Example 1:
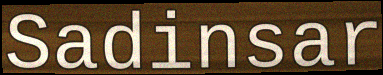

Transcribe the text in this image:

Sadinsar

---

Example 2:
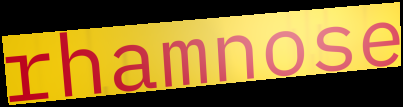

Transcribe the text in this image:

rhamnose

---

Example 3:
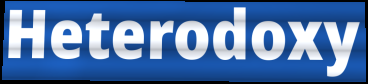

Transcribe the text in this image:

Heterodoxy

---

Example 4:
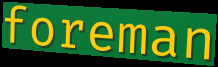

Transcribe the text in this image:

foreman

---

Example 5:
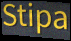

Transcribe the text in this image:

Stipa